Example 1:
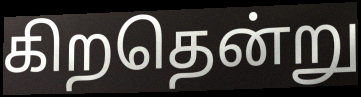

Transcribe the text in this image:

கிறதென்று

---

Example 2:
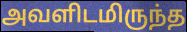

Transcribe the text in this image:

அவளிடமிருந்த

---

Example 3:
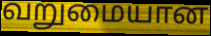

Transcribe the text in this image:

வறுமையான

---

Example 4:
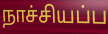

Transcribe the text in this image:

நாச்சியப்ப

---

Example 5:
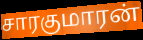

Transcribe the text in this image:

சாரகுமாரன்